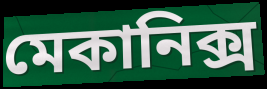
মেকানিক্স